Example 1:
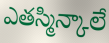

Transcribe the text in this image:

ఎతస్మిన్కాలే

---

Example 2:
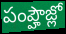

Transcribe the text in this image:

పంప్హౌజ్లో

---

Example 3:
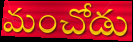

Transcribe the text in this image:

మంచోడు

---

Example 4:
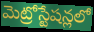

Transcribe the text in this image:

మెట్రోస్టేషన్లలో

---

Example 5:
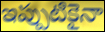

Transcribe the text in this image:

ఇప్పుటికైనా